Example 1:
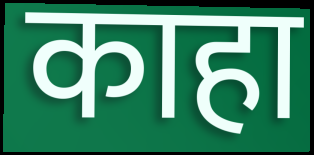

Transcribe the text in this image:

काहा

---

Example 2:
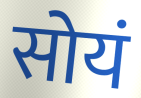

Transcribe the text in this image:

सोयं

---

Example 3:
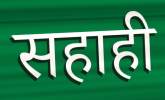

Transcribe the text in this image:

सहाही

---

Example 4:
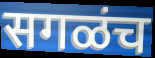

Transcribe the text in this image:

सगळंच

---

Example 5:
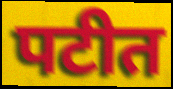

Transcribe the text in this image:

पटीत